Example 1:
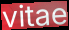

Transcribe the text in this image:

vitae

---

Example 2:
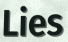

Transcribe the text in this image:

Lies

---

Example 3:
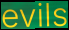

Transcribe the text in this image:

evils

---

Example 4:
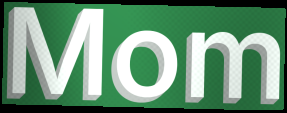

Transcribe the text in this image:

Mom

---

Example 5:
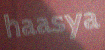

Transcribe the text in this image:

haasya